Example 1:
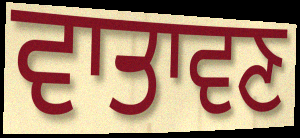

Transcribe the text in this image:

ਵਾਤਾਵਣ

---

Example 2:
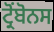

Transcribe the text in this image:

ਟ੍ਰੋਂਬੋਨਸ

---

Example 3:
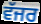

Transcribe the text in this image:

ਵੱਜਰ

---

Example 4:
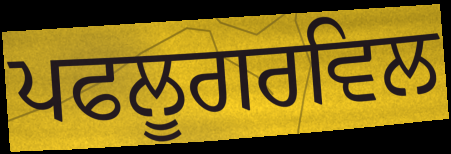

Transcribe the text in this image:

ਪਫਲੂਗਰਵਿਲ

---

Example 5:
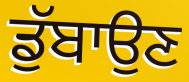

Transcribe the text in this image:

ਡੁੱਬਾਉਣ